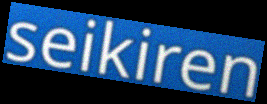
seikiren